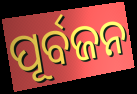
ପୂର୍ବଜନ